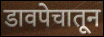
डावपेचातून